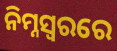
ନିମ୍ନସ୍ୱରରେ